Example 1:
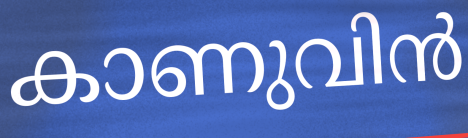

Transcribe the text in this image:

കാണുവിൻ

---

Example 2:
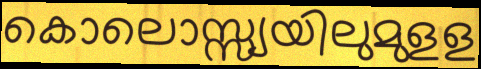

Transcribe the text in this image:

കൊലൊസ്സ്യയിലുമുളള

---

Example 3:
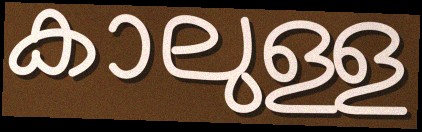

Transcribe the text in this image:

കാലുള്ള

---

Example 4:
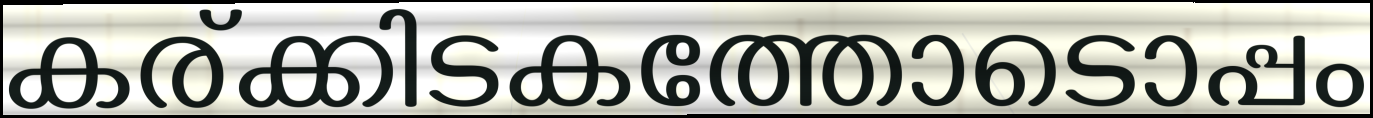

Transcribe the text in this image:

കര്ക്കിടകത്തോടൊപ്പം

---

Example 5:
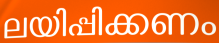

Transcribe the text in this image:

ലയിപ്പിക്കണം